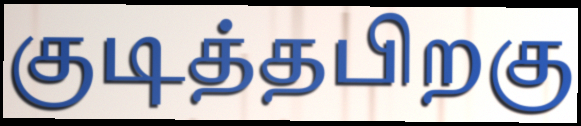
குடித்தபிறகு